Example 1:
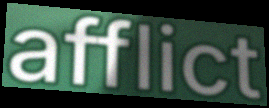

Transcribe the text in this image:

afflict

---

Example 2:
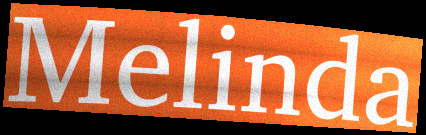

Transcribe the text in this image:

Melinda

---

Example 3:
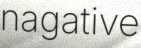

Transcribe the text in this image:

nagative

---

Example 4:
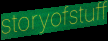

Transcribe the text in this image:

storyofstuff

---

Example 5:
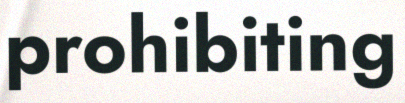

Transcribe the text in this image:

prohibiting